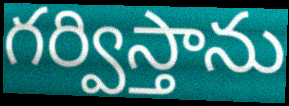
గర్విస్తాను